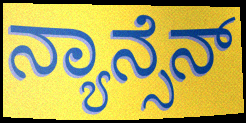
ನ್ಯಾನ್ಸೆನ್